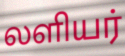
லளியர்